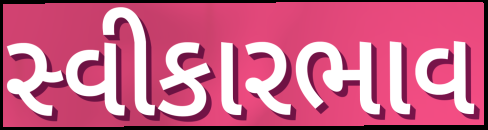
સ્વીકારભાવ